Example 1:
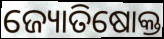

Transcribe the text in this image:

ଜ୍ୟୋତିଷୋକ୍ତ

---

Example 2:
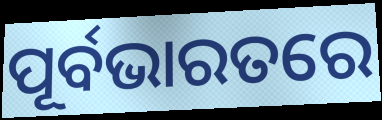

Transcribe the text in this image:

ପୂର୍ବଭାରତରେ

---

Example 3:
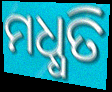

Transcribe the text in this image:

ମଧ୍ଧତି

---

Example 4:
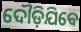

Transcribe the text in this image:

ଦୌଡ଼ିଯିବେ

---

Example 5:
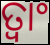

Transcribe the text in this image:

ତ୍ୱାଂ